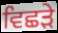
ਵਿਛੜੇ